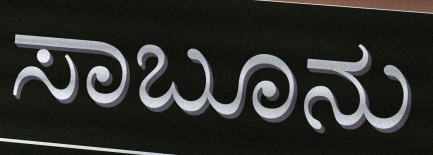
ಸಾಬೂನು